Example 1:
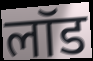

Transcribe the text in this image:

लॉड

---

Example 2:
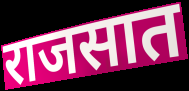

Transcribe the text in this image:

राजसात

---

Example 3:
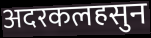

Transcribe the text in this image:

अदरकलहसुन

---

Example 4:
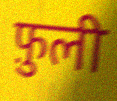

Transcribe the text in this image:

फ़ुली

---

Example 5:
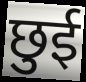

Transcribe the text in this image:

छुई